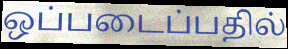
ஒப்படைப்பதில்